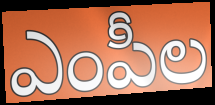
ఎంపీల